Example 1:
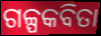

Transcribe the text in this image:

ଗଳ୍ପକବିତା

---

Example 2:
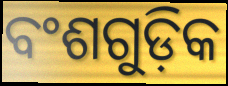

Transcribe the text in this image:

ବଂଶଗୁଡ଼ିକ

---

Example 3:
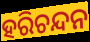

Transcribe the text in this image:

ହରିଚନ୍ଦନ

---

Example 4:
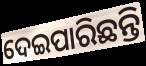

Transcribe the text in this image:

ଦେଇପାରିଛନ୍ତି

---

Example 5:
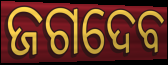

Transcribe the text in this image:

ଜଗଦେବ